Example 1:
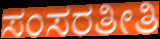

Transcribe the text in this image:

ಸಂಸರತೀತಿ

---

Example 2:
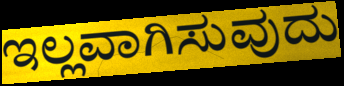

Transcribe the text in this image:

ಇಲ್ಲವಾಗಿಸುವುದು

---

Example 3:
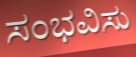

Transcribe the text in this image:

ಸಂಭವಿಸು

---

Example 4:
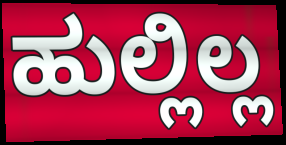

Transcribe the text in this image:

ಹುಲ್ಲಿಲ್ಲ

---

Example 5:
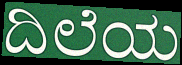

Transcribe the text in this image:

ದಿಲೆಯ